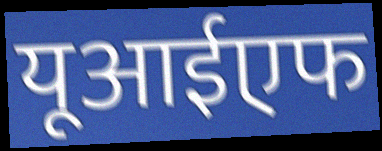
यूआईएफ